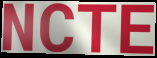
NCTE